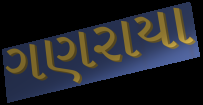
ગણરાયા